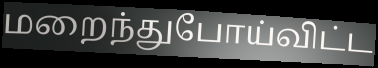
மறைந்துபோய்விட்ட